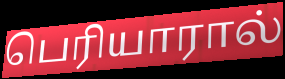
பெரியாரால்